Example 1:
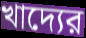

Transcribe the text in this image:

খাদ্যের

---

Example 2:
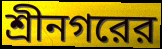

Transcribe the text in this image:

শ্রীনগরের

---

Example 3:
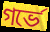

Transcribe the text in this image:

গর্ভে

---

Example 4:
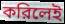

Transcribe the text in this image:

করিলেই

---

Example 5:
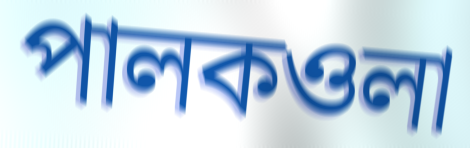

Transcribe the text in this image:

পালকওলা